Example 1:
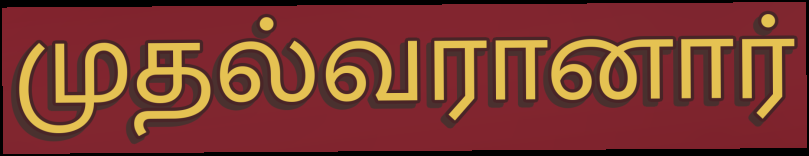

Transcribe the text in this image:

முதல்வரானார்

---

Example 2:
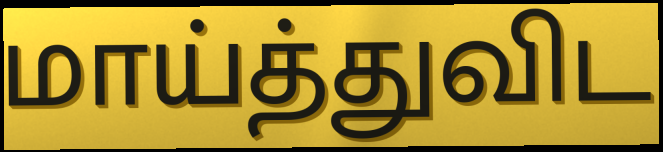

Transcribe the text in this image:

மாய்த்துவிட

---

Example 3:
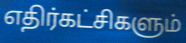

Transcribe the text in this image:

எதிர்கட்சிகளும்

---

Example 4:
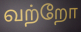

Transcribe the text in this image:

வற்றோ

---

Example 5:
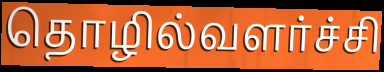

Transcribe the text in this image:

தொழில்வளர்ச்சி